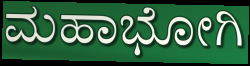
ಮಹಾಭೋಗಿ